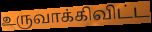
உருவாக்கிவிட்ட